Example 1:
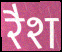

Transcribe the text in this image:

रैश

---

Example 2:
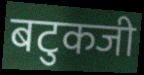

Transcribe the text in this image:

बटुकजी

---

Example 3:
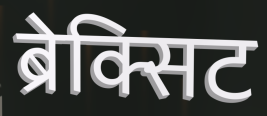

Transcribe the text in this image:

ब्रेक्सिट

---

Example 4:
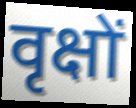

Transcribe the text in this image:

वृक्षों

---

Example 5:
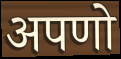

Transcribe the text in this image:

अपणो